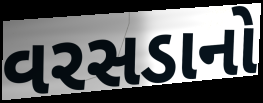
વરસડાનો